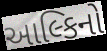
આલ્કિનો